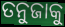
ତନୁଜାକୁ